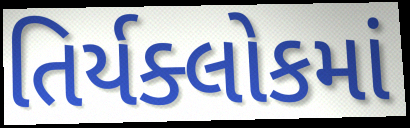
તિર્યક્લોકમાં